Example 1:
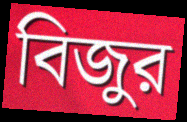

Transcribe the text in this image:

বিজুর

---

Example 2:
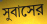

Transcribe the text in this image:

সুবাসের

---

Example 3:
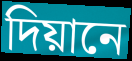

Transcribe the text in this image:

দিয়ানে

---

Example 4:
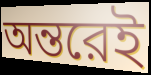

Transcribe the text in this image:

অন্তরেই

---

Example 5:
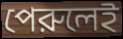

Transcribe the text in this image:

পেরুলেই